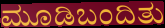
ಮೂಡಿಬಂದಿತು